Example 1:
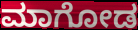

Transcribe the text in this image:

ಮಾಗೋಡ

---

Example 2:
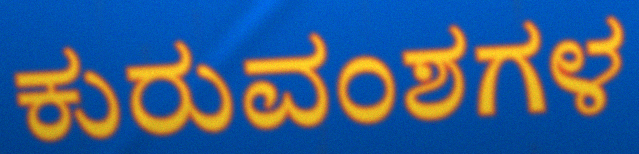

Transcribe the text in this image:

ಕುರುವಂಶಗಳ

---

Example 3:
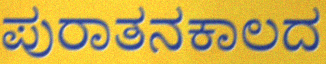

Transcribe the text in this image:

ಪುರಾತನಕಾಲದ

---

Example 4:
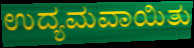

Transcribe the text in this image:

ಉದ್ಯಮವಾಯಿತು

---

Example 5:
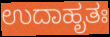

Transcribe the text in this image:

ಉದಾಹೃತಃ